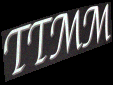
TTMM